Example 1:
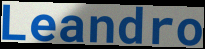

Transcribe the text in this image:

Leandro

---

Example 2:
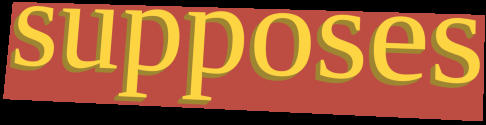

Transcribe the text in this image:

supposes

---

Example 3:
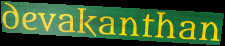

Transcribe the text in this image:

devakanthan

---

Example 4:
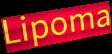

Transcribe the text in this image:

Lipoma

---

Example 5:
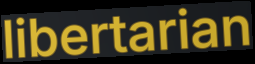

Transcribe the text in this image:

libertarian